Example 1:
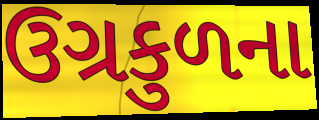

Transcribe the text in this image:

ઉગ્રકુળના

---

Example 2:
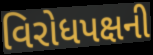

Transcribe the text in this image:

વિરોધપક્ષની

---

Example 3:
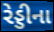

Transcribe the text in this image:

રેડ્ડીના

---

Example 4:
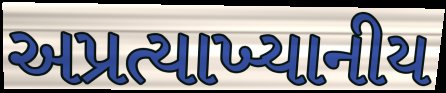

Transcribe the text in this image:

અપ્રત્યાખ્યાનીય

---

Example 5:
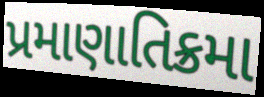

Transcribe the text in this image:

પ્રમાણાતિક્રમા